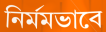
নির্মমভাবে